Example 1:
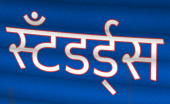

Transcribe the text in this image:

स्टँडर्ड्स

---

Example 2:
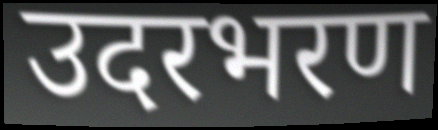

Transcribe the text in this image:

उदरभरण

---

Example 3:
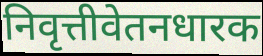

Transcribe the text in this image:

निवृत्तीवेतनधारक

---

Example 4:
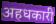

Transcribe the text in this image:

अहधकारी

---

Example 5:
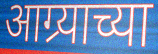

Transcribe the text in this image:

आग्र्याच्या